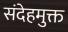
संदेहमुक्त